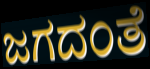
ಜಗದಂತೆ